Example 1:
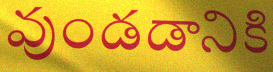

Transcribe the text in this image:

వుండడానికి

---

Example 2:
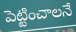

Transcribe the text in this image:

పెట్టించాలనే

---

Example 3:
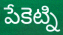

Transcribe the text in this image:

పేకెట్ని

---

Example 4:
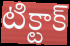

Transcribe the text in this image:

టిక్టాక్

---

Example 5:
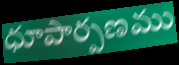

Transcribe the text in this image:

ధూపార్పణము